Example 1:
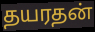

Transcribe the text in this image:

தயரதன்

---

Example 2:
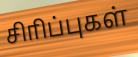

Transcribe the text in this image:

சிரிப்புகள்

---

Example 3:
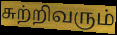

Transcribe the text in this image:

சுற்றிவரும்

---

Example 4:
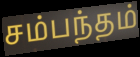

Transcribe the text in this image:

சம்பந்தம்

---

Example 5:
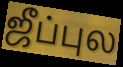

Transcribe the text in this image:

ஜீப்புல